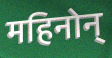
महिनोन्